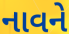
નાવને